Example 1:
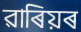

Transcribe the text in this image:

ৱাৰিয়ৰ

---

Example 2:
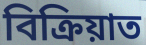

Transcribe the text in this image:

বিক্ৰিয়াত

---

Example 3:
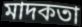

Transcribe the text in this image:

মাদকতা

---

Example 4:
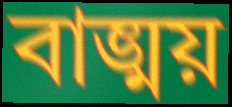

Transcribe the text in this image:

বাঙ্ময়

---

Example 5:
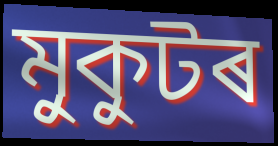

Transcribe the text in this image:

মুকুটৰ